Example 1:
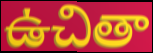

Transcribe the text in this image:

ఉచితా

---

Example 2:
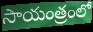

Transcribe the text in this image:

సాయంత్రంలో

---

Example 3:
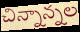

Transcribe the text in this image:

చిన్నాన్నల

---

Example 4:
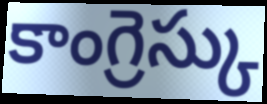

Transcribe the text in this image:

కాంగ్రెస్కు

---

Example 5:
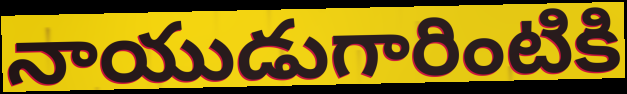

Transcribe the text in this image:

నాయుడుగారింటికి